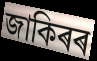
জাকিৰৰ